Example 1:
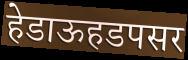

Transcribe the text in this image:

हेडाऊहडपसर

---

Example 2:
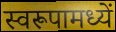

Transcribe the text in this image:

स्वरूपामध्यें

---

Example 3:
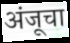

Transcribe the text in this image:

अंजूचा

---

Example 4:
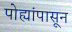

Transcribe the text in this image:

पोह्यांपासून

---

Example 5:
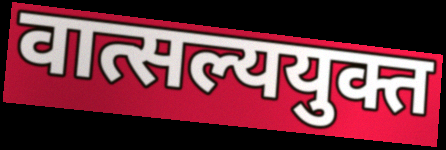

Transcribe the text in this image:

वात्सल्ययुक्त